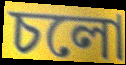
চলো